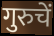
गुरुचें